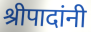
श्रीपादांनी